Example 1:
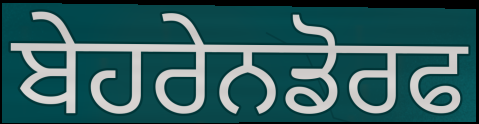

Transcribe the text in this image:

ਬੇਹਰੇਨਡੋਰਫ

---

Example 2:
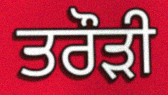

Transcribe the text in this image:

ਤਰੌੜੀ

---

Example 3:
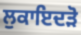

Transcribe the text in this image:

ਲੁਕਾਇਦੜੋ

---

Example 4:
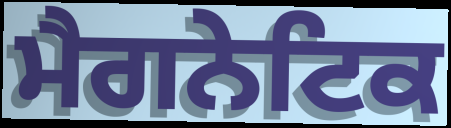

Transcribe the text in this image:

ਮੈਗਨੇਟਿਕ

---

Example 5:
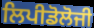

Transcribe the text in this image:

ਲਿਪੀਡੋਲੋਜੀ